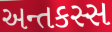
અન્તકસ્સ